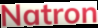
Natron